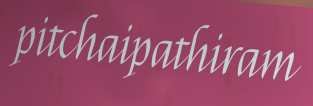
pitchaipathiram